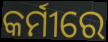
କର୍ମୀରେ